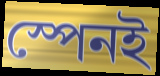
স্পেনই